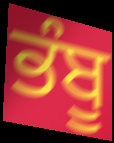
ਭੰਬੂ